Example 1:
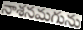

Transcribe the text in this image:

నాశనమగును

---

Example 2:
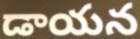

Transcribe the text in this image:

డాయన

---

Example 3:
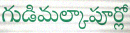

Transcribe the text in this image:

గుడిమల్కాపూర్లో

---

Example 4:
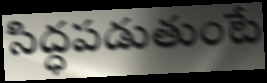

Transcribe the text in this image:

సిద్ధపడుతుంటే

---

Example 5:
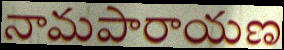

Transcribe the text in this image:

నామపారాయణ